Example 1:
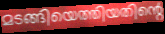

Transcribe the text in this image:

മടങ്ങിയെത്തിയതിന്റെ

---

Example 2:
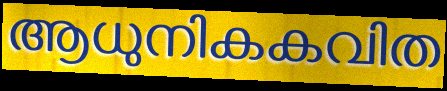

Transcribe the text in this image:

ആധുനികകവിത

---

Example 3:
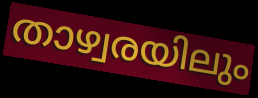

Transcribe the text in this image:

താഴ്വരയിലും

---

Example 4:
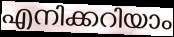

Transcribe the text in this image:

എനിക്കറിയാം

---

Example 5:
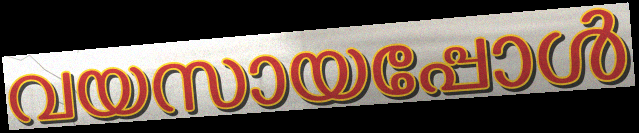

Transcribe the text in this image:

വയസായപ്പോൾ